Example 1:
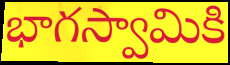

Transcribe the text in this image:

భాగస్వామికి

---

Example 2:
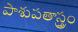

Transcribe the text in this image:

పాశుపతాస్త్రం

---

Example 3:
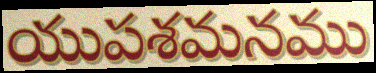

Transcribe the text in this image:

యుపశమనము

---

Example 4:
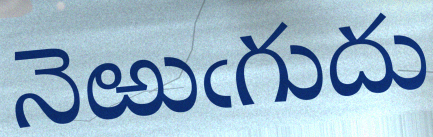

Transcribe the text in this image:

నెఱుఁగుదు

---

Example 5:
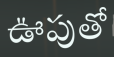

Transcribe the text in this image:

ఊపుతో